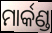
ମାର୍କଣ୍ଡ